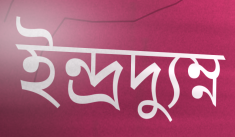
ইন্দ্রদ্যুম্ন